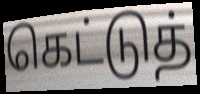
கெட்டுத்